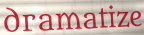
dramatize